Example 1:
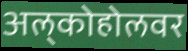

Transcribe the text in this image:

अल्कोहोलवर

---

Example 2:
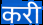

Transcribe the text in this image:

करी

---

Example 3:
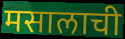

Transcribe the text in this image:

मसालाची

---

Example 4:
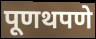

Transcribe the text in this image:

पूणथपणे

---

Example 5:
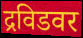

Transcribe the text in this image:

द्रविडवर